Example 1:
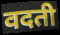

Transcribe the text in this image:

वदती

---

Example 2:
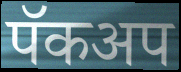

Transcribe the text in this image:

पॅकअप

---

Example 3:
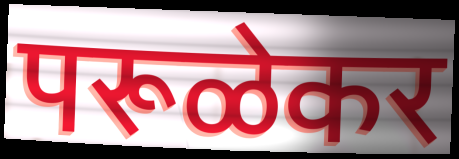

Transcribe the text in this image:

परूळेकर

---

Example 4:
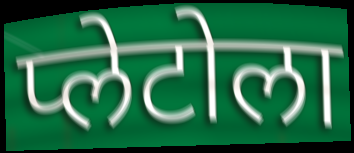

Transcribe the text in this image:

प्लेटोला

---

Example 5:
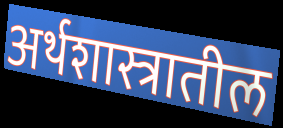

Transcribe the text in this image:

अर्थशास्त्रातील